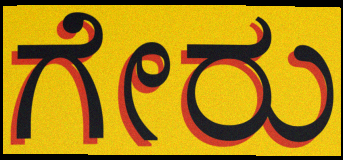
ಗೇರು